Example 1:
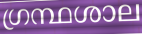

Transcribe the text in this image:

ഗ്രന്ഥശാല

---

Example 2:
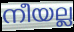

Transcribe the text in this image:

നീയല്ല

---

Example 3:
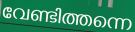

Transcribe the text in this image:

വേണ്ടിത്തന്നെ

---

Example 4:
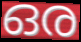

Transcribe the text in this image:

ഒര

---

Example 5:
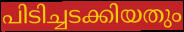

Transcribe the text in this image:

പിടിച്ചടക്കിയതും